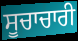
ਸੂਚਾਚਾਰੀ